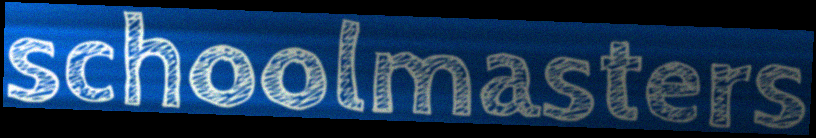
schoolmasters